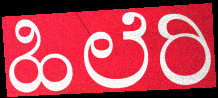
ಹಿಲೆರಿ